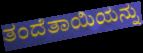
ತಂದೆತಾಯಿಯನ್ನು